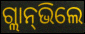
ଗ୍ଲାନ୍‌ଭିଲେ